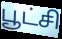
பூட்சி